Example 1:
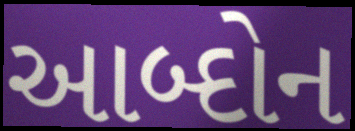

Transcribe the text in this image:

આબ્દોન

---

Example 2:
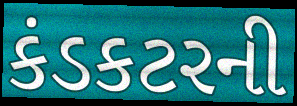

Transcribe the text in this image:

કંડકટરની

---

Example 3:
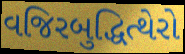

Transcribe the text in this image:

વજિરબુદ્ધિત્થેરો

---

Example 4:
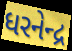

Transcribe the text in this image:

ધરનેન્દ્ર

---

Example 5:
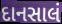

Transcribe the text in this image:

દાનસાલં